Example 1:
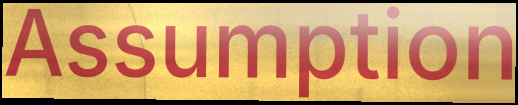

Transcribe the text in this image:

Assumption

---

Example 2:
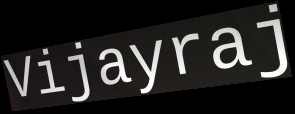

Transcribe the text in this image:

Vijayraj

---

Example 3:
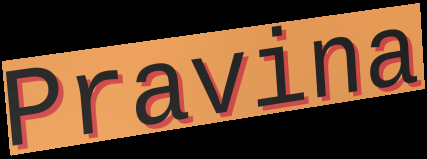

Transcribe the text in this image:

Pravina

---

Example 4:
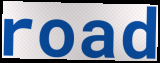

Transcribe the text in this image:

road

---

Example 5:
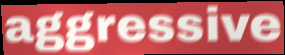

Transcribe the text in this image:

aggressive